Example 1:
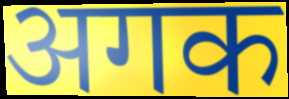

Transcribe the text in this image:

अगक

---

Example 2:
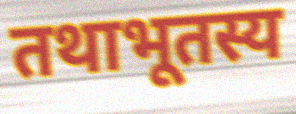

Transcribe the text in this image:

तथाभूतस्य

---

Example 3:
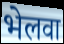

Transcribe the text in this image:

भेलवा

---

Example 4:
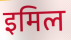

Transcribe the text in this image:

इमिल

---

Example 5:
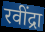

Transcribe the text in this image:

रवींद्रा